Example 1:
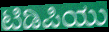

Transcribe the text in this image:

ಟಿಡಿಪಿಯು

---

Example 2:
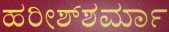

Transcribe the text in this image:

ಹರೀಶ್‌ಶರ್ಮಾ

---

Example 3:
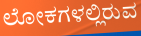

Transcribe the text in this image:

ಲೋಕಗಳಲ್ಲಿರುವ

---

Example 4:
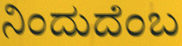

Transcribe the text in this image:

ನಿಂದುದೆಂಬ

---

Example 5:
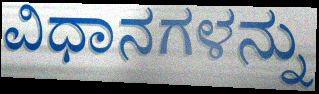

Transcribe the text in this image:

ವಿಧಾನಗಳನ್ನು